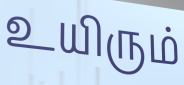
உயிரும்